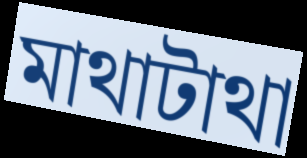
মাথাটাথা